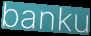
banku